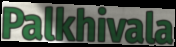
Palkhivala